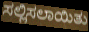
ಸಲ್ಲಿಸಲಾಯಿತು